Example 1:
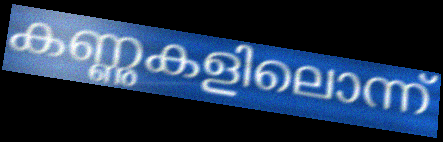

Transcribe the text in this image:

കണ്ണുകളിലൊന്ന്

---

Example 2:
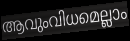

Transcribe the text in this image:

ആവുംവിധമെല്ലാം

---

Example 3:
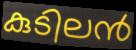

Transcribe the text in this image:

കുടിലൻ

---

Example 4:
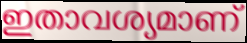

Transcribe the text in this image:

ഇതാവശ്യമാണ്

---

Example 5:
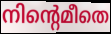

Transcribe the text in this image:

നിന്റെമീതെ